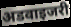
अडवाइजरी